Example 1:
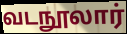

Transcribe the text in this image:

வடநூலார்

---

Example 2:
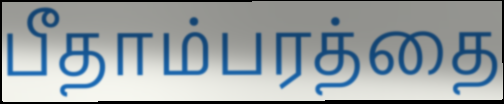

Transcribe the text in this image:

பீதாம்பரத்தை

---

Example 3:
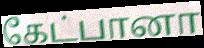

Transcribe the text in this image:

கேட்பானா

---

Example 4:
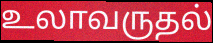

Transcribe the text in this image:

உலாவருதல்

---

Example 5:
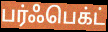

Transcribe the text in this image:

பர்ஃபெக்ட்